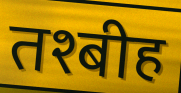
तश्बीह